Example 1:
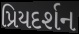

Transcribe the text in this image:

પ્રિયદર્શન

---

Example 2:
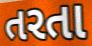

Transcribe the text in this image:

તરતા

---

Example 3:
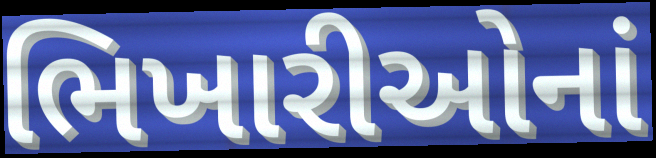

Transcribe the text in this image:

ભિખારીઓનાં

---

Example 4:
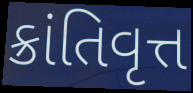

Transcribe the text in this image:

ક્રાંતિવૃત્ત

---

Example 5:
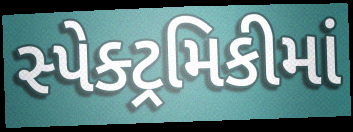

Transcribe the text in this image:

સ્પેક્ટ્રમિકીમાં